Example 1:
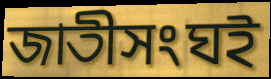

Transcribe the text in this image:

জাতীসংঘই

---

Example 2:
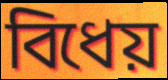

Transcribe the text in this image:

বিধেয়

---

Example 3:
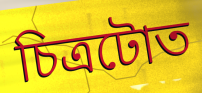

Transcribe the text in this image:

চিত্ৰটোত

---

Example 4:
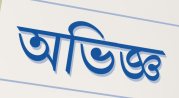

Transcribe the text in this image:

অভিজ্ঞ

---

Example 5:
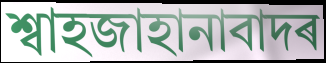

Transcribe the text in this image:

শ্বাহজাহানাবাদৰ